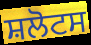
ਸ਼ਲੋਟਸ